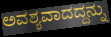
ಅವಶ್ಯವಾದದ್ದನ್ನು